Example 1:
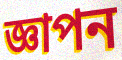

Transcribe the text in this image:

জ্ঞাপন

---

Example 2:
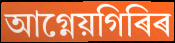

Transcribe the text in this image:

আগ্নেয়গিৰিৰ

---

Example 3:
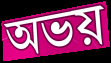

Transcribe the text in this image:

অভয়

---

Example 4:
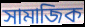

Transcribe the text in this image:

সামাজিক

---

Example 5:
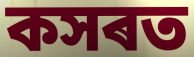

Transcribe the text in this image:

কসৰত